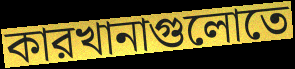
কারখানাগুলোতে